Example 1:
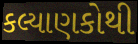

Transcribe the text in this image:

કલ્યાણકોથી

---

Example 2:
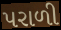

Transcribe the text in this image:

પરાળી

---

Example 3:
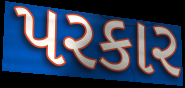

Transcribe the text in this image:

પરકાર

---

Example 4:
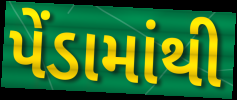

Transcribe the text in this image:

પેંડામાંથી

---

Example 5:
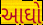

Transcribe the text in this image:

આઘો